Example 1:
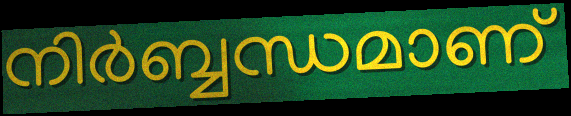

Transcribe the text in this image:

നിർബ്ബന്ധമാണ്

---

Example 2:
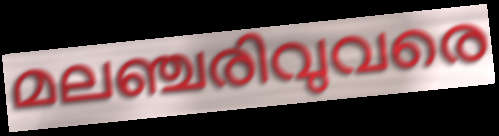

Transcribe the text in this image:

മലഞ്ചരിവുവരെ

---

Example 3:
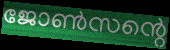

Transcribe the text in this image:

ജോൺസന്റെ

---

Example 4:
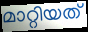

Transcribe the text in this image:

മാറ്റിയത്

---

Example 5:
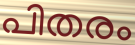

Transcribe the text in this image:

പിതരം